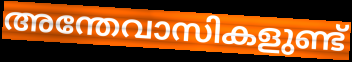
അന്തേവാസികളുണ്ട്